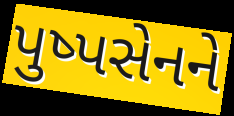
પુષ્પસેનને